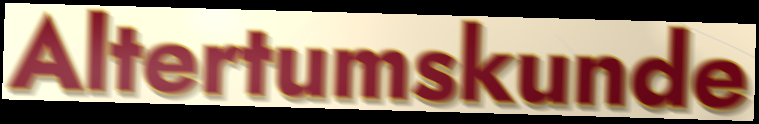
Altertumskunde